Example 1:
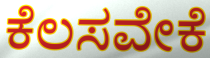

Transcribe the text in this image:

ಕೆಲಸವೇಕೆ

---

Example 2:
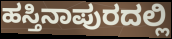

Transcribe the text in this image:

ಹಸ್ತಿನಾಪುರದಲ್ಲಿ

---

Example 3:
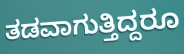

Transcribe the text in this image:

ತಡವಾಗುತ್ತಿದ್ದರೂ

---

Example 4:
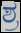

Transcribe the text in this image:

ಶ್ರ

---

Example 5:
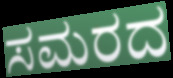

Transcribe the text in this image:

ಸಮರದ